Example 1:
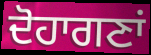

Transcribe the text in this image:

ਦੋਹਾਗਣਾਂ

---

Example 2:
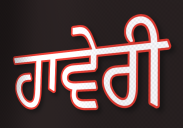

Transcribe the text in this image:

ਹਾਵੇਰੀ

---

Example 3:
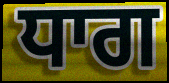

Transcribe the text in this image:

ਧਾਗ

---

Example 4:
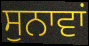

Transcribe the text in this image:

ਸੁਨਾਵਾਂ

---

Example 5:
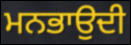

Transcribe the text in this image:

ਮਨਭਾਉਦੀ